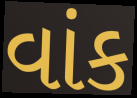
વાંક